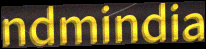
ndmindia